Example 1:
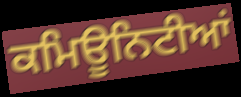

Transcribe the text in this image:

ਕਮਿਊਨਿਟੀਆਂ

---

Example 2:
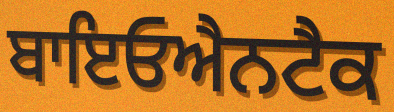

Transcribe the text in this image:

ਬਾਇਓਐਨਟੈਕ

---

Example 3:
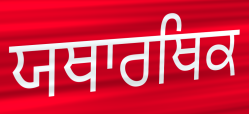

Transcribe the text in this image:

ਯਥਾਰਥਿਕ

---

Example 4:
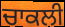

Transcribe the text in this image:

ਚਾਕਲੀ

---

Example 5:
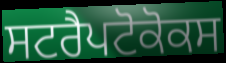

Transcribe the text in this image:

ਸਟਰੈਪਟੋਕੋਕਸ